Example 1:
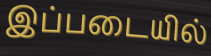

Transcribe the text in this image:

இப்படையில்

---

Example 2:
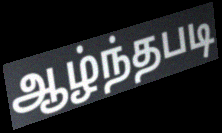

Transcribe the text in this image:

ஆழ்ந்தபடி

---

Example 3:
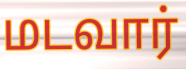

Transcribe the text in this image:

மடவார்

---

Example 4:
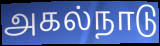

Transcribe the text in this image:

அகல்நாடு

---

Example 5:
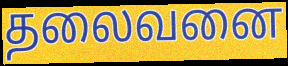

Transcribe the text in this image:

தலைவனை